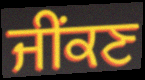
ਜੀਂਕਣ